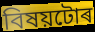
বিষয়টোৰ